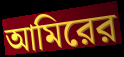
আমিরের